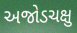
અજોડચક્ષુ